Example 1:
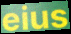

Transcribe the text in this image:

eius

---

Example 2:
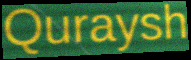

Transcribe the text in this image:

Quraysh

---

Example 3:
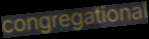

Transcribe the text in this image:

congregational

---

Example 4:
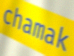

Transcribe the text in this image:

chamak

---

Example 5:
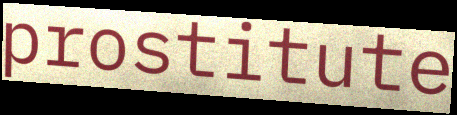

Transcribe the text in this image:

prostitute